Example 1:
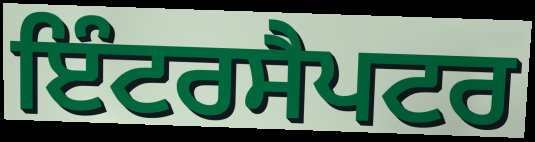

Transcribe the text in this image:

ਇੰਟਰਸੈਪਟਰ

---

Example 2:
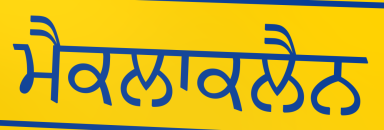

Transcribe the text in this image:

ਮੈਕਲਾਕਲੈਨ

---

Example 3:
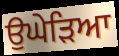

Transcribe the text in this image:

ਉਘੇੜਿਆ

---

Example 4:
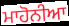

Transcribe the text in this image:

ਮਾਹੋਨੀਆ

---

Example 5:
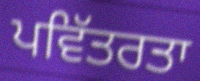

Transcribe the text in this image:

ਪਵਿੱਤਰਤਾ